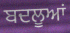
ਬਦਲੂਆਂ